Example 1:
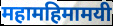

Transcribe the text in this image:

महामहिमामयी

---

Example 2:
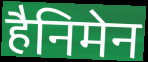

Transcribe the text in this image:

हैनिमेन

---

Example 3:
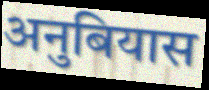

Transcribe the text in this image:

अनुबियास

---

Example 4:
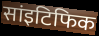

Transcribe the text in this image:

सांइटिफिक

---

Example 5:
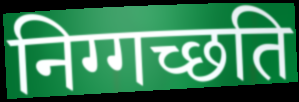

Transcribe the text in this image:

निग्गच्छति